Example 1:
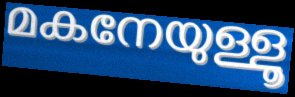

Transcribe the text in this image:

മകനേയുള്ളൂ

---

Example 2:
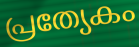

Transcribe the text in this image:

പ്രത്യേകം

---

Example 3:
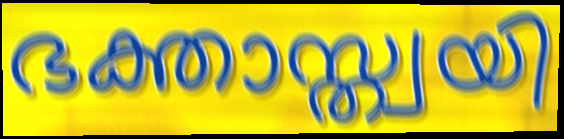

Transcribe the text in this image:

ഭക്താസ്ത്വയി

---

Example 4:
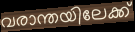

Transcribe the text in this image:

വരാന്തയിലേക്ക്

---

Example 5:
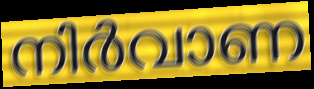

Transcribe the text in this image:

നിർവാണ